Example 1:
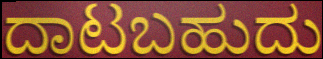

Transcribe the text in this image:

ದಾಟಬಹುದು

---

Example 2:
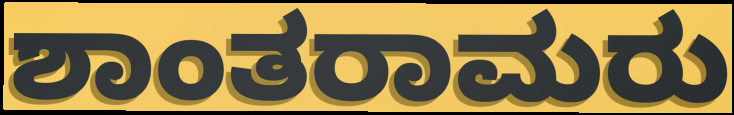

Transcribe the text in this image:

ಶಾಂತರಾಮರು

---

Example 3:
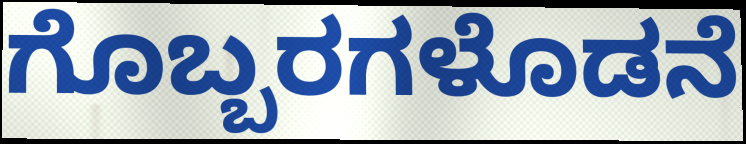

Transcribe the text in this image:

ಗೊಬ್ಬರಗಳೊಡನೆ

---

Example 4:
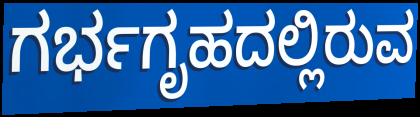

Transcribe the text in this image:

ಗರ್ಭಗೃಹದಲ್ಲಿರುವ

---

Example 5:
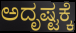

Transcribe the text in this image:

ಅದೃಷ್ಟಕ್ಕೆ